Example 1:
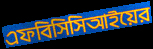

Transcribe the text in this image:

এফবিসিসিআইয়ের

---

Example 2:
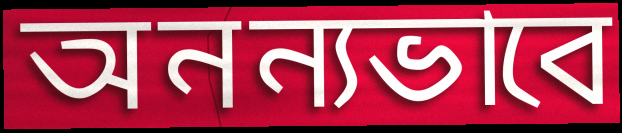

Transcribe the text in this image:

অনন্যভাবে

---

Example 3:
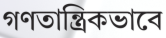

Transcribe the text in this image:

গণতান্ত্রিকভাবে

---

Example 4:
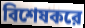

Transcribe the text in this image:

বিশেষকরে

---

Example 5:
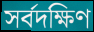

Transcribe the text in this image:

সর্বদক্ষিণ